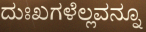
ದುಃಖಗಳೆಲ್ಲವನ್ನೂ